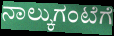
ನಾಲ್ಕುಗಂಟೆಗೆ